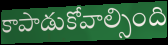
కాపాడుకోవాల్సింది